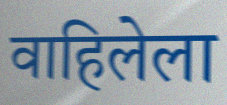
वाहिलेला